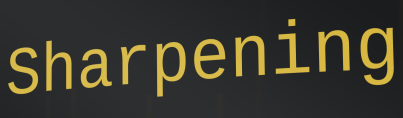
Sharpening